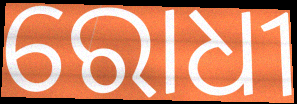
ରୋଧୀ